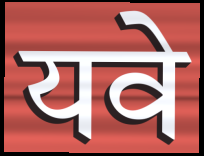
यवे